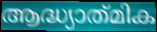
ആദ്ധ്യാത്‌മിക